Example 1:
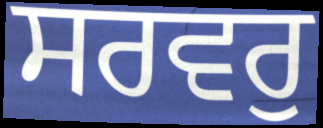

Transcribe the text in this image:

ਸਰਵਰੁ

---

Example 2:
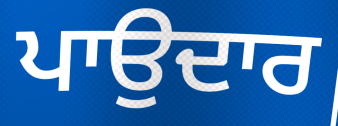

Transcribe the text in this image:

ਪਾਉਦਾਰ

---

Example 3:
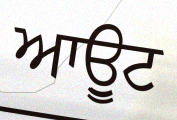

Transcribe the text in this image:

ਆਉੂਟ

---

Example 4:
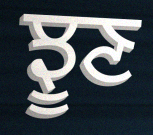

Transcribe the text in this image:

ਝੂਣ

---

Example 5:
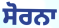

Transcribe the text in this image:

ਸੋਰਨਾ